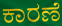
ಕಾರಣೆ